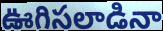
ఊగిసలాడినా